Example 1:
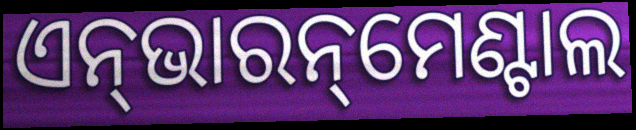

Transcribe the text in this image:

ଏନ୍‌ଭାରନ୍‌ମେଣ୍ଟାଲ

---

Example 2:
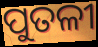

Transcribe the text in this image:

ପୁତଳୀ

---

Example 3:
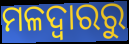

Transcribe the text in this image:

ମଳଦ୍ୱାରରୁ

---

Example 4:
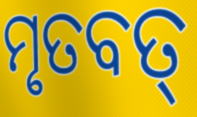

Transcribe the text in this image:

ମୃତବତ୍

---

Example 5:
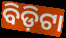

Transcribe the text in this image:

ବିଡ଼ିଟା